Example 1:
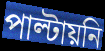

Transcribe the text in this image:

পাল্টায়নি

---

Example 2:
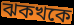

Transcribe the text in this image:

ঝকখকে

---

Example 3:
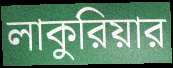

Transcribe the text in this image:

লাকুরিয়ার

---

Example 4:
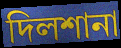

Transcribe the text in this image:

দিলশানা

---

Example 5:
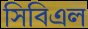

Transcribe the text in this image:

সিবিএল